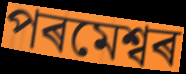
পৰমেশ্বৰ